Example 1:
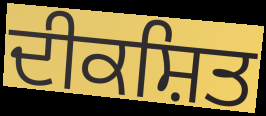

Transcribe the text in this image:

ਦੀਕਸ਼ਿਤ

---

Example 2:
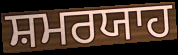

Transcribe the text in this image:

ਸ਼ਮਰਯਾਹ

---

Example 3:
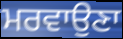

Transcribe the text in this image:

ਮਰਵਾਉਣਾ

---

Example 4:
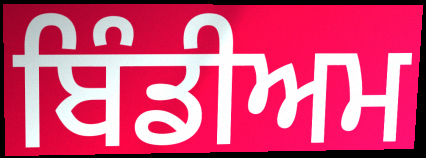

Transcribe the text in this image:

ਬਿੰਡੀਅਮ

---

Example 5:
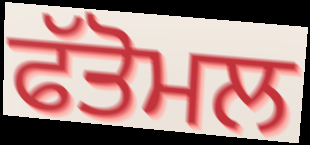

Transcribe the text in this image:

ਫੱਤੋਮਲ